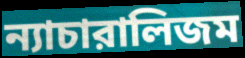
ন্যাচারালিজম